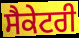
ਸੈਕੇਟਰੀ